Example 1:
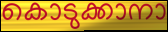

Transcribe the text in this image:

കൊടുക്കാനാ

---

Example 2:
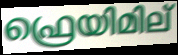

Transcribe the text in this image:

ഫ്രെയിമില്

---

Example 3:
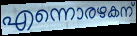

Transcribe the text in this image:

എന്നൊരഴകന്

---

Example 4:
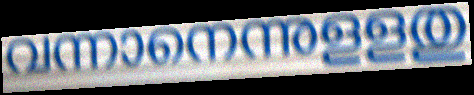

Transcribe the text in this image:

വന്നാനെന്നുളളതു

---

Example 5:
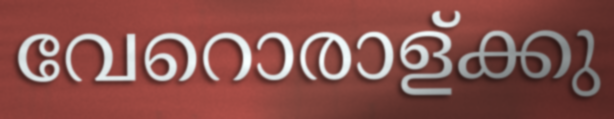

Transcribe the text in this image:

വേറൊരാള്ക്കു